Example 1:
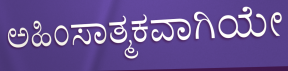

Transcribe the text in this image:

ಅಹಿಂಸಾತ್ಮಕವಾಗಿಯೇ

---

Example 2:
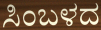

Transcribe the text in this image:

ಸಿಂಬಳದ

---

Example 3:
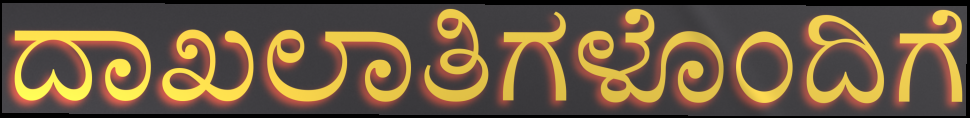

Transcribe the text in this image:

ದಾಖಲಾತಿಗಳೊಂದಿಗೆ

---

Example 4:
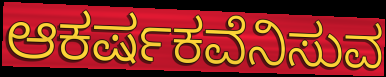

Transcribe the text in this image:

ಆಕರ್ಷಕವೆನಿಸುವ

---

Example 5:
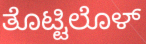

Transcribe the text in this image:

ತೊಟ್ಟಿಲೊಳ್